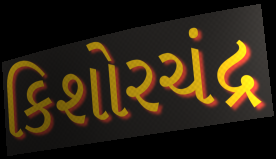
કિશોરચંદ્ર